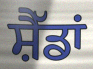
ਸ਼ੈੱਡਾਂ